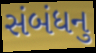
સંબંધનુ